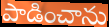
పాడించాను